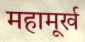
महामूर्ख